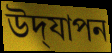
উদ্‌যাপন